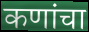
कणांचा